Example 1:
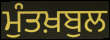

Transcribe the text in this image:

ਮੁੰਤਖ਼ਬੁਲ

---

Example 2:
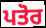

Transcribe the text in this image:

ਪਤੋਰ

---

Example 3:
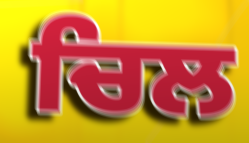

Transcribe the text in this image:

ਚਿਲ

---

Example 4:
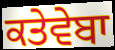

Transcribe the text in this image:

ਕਤੇਵੇਬਾ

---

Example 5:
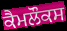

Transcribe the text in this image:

ਕੈਮਲੌਕਸ